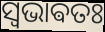
ସ୍ଵଭାଵତଃ